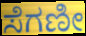
ಸೆಗಣೀ